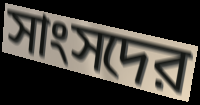
সাংসদের